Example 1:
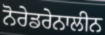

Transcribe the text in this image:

ਨੋਰੇਡਰੇਨਾਲੀਨ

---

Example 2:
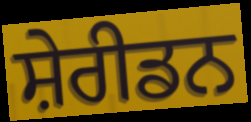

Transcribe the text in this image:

ਸ਼ੇਰੀਡਨ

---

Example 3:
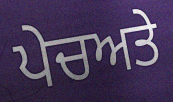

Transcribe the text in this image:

ਪੇਚਅਤੇ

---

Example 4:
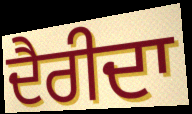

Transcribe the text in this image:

ਦੈਰੀਦਾ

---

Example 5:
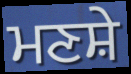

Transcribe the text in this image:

ਮਣਸ਼ੇ